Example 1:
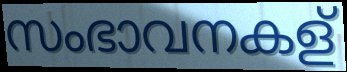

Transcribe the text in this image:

സംഭാവനകള്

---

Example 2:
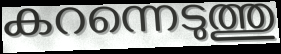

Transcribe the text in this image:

കറന്നെടുത്തു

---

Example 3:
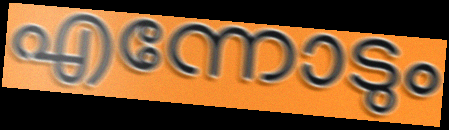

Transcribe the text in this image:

എന്നോടും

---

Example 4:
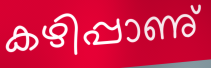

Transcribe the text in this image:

കഴിപ്പാണു്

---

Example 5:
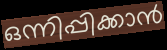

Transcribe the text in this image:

ഒന്നിപ്പിക്കാൻ